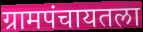
ग्रामपंचायतला